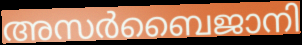
അസർബൈജാനി